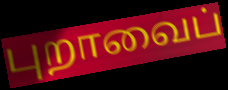
புறாவைப்